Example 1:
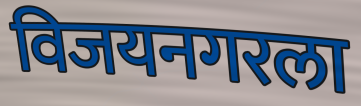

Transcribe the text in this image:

विजयनगरला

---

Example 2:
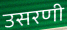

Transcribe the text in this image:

उसरणी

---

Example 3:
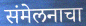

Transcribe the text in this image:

संमेलनाचा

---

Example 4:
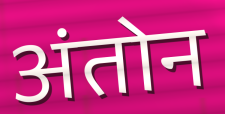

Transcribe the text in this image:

अंतोन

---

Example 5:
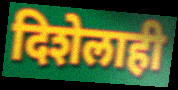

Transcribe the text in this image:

दिशेलाही